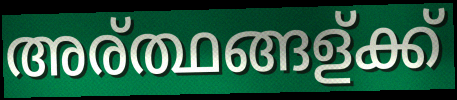
അര്ത്ഥങ്ങള്ക്ക്